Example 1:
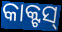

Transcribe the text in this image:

କାକ୍ଟସ୍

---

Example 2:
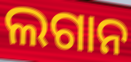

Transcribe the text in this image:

ଲଗାନ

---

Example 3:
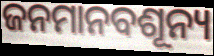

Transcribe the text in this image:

ଜନମାନବଶୂନ୍ୟ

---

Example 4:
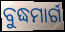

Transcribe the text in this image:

ବୁଦ୍ଧମାର୍ଗ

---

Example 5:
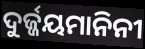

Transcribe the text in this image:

ଦୁର୍ଜ୍ଜୟମାନିନୀ